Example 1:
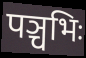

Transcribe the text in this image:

पञ्चभिः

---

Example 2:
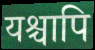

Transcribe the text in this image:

यश्चापि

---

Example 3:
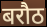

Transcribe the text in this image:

बरौठ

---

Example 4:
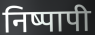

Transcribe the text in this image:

निष्पापी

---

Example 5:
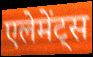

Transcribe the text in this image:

एलेमेंट्स